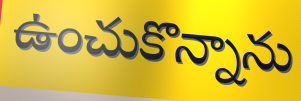
ఉంచుకొన్నాను